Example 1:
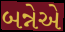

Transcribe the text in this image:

બન્નેએ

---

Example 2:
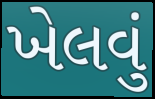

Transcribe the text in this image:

ખેલવું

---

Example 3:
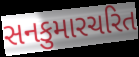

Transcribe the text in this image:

સનકુમારચરિત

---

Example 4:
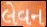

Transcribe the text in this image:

લેવન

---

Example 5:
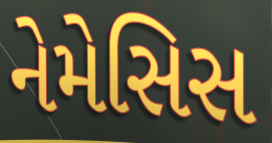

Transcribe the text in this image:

નેમેસિસ